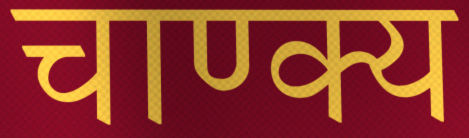
चाण्क्य